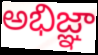
అభిజ్ఞా